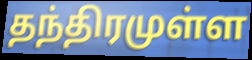
தந்திரமுள்ள